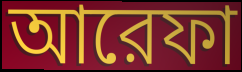
আরেফা